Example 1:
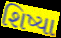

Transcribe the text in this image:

શિષ્યા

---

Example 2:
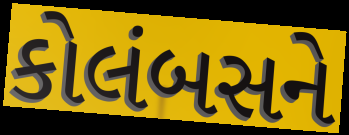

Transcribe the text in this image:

કોલંબસને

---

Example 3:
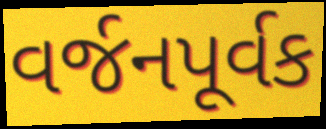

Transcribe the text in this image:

વર્જનપૂર્વક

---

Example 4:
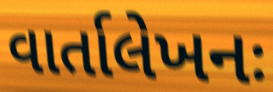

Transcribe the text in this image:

વાર્તાલેખનઃ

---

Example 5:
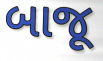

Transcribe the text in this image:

બાજૂ